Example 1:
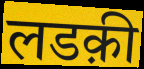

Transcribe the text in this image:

लडक़ी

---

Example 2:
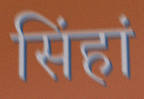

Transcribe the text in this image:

सिंहां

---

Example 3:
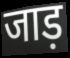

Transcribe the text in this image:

जाड़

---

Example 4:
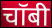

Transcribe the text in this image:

चॉबी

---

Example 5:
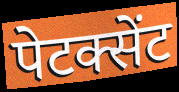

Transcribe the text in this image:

पेटक्सेंट